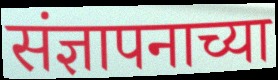
संज्ञापनाच्या